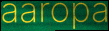
aaropa